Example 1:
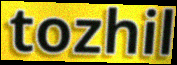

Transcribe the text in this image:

tozhil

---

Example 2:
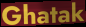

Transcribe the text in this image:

Ghatak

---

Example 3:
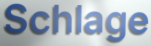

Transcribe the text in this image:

Schlage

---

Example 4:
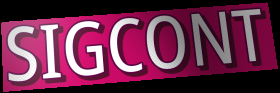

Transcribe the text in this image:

SIGCONT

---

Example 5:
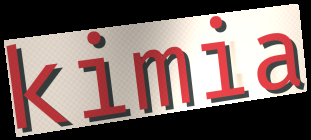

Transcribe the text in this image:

kimia